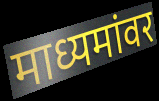
माध्यमांवर